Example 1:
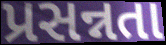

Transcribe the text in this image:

પ્રસન્નતા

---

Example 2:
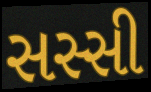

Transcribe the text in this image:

સસ્સી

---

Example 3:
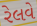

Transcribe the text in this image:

રેલવે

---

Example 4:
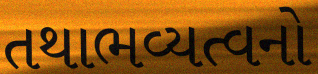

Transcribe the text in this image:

તથાભવ્યત્વનો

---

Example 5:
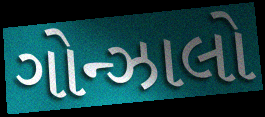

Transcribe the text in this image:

ગોન્ઝાલો